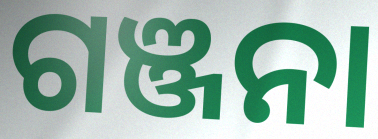
ଗଞ୍ଜନା